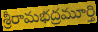
శ్రీరామభద్రమూర్తి